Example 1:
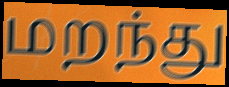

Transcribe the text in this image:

மறந்து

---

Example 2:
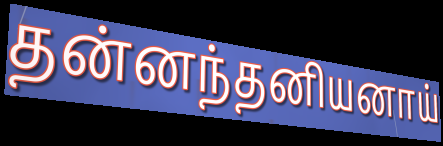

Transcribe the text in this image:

தன்னந்தனியனாய்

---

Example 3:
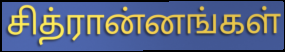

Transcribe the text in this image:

சித்ரான்னங்கள்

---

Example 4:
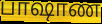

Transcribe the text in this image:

பாஷாண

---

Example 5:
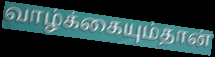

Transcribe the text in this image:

வாழ்க்கையும்தான்